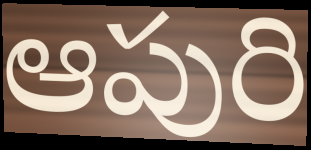
ఆపురి